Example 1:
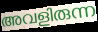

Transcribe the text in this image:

അവളിരുന്ന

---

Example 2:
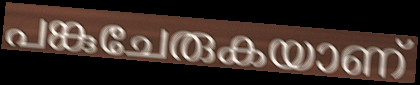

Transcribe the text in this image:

പങ്കുചേരുകയാണ്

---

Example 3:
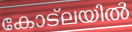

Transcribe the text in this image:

കോട്ലയിൽ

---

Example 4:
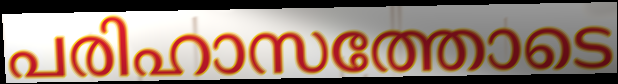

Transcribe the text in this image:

പരിഹാസത്തോടെ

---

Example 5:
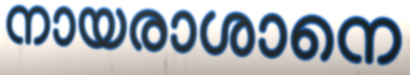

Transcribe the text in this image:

നായരാശാനെ